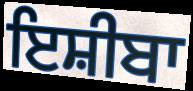
ਇਸ਼ੀਬਾ